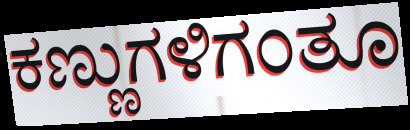
ಕಣ್ಣುಗಳಿಗಂತೂ